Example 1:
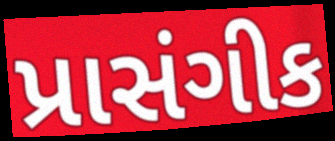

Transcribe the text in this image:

પ્રાસંગીક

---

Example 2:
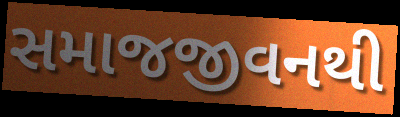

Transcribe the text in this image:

સમાજજીવનથી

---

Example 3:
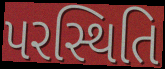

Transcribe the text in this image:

પરસ્થિતિ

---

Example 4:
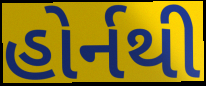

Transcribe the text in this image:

હોર્નથી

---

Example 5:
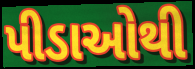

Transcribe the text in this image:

પીડાઓથી